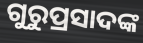
ଗୁରୁପ୍ରସାଦଙ୍କ